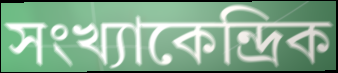
সংখ্যাকেন্দ্রিক